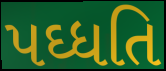
પઘ્ધતિ